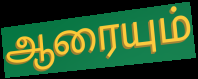
ஆரையும்